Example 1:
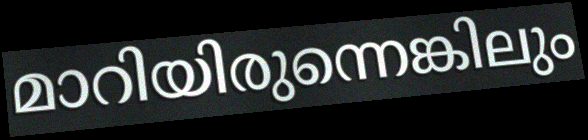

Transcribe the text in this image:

മാറിയിരുന്നെങ്കിലും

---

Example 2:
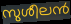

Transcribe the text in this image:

സുശീലൻ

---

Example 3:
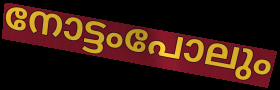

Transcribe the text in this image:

നോട്ടംപോലും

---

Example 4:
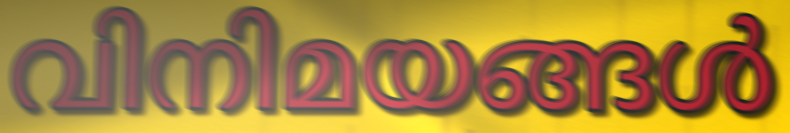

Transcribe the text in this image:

വിനിമയങ്ങൾ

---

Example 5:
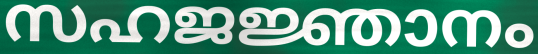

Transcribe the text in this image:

സഹജജ്ഞാനം